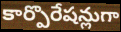
కార్పొరేషన్లుగా